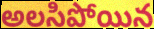
అలసిపోయిన